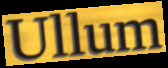
Ullum